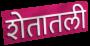
शेतातली